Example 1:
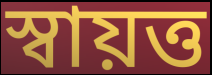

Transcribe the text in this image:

স্বায়ত্ত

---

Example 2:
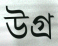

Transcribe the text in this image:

উগ্ৰ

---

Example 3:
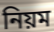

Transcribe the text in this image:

নিয়ম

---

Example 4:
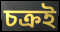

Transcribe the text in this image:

চক্ৰই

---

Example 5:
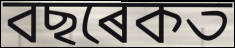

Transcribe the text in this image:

বছৰেকত